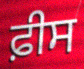
ਫ਼ੀਸ